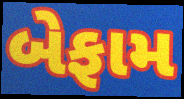
બેફામ